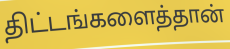
திட்டங்களைத்தான்